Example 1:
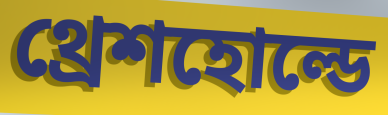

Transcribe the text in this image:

থ্রেশহোল্ডে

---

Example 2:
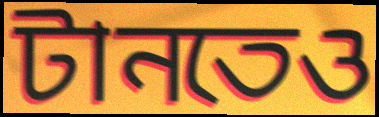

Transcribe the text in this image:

টানতেও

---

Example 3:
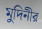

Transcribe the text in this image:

মুদিনীর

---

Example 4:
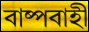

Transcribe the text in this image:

বাষ্পবাহী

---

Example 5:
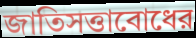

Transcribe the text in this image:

জাতিসত্তাবোধের